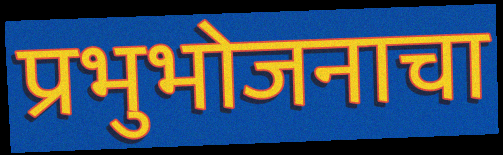
प्रभुभोजनाचा